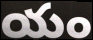
యం